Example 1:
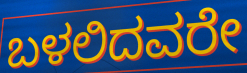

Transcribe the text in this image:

ಬಳಲಿದವರೇ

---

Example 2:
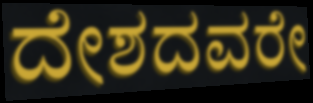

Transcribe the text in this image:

ದೇಶದವರೇ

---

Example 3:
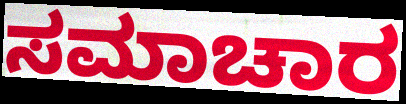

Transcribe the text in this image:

ಸಮಾಚಾರ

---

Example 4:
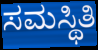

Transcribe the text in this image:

ಸಮಸ್ಥಿತಿ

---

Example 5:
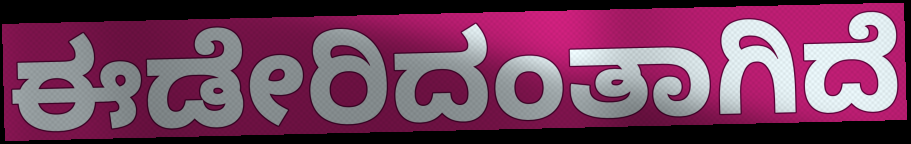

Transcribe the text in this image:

ಈಡೇರಿದಂತಾಗಿದೆ